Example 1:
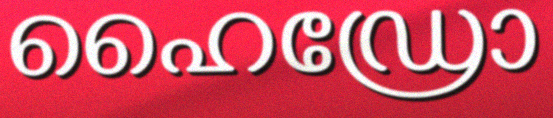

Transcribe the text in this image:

ഹൈഡ്രോ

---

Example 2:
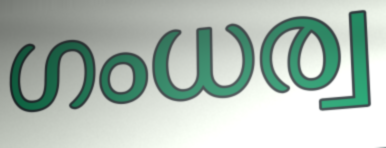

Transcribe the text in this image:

ഗംധര്വ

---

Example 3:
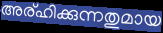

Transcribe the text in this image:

അര്ഹിക്കുന്നതുമായ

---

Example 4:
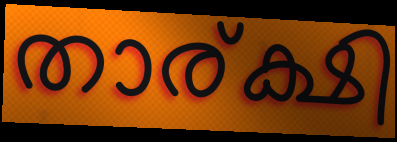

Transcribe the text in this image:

താര്ക്ഷി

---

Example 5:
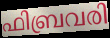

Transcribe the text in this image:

ഫിബ്രവരി